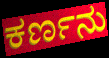
ಕರ್ಣನು